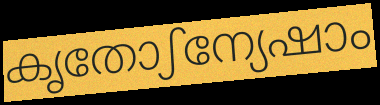
കൃതോഽന്യേഷാം